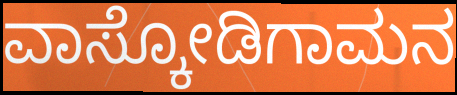
ವಾಸ್ಕೋಡಿಗಾಮನ